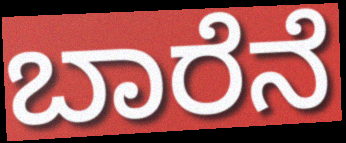
ಬಾರೆನೆ